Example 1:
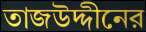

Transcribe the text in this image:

তাজউদ্দীনের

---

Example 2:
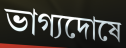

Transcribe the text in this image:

ভাগ্যদোষে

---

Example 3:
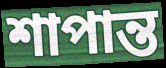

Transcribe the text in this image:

শাপান্ত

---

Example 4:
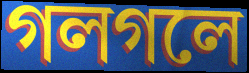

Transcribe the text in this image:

গলগলে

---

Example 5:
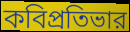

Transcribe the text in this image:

কবিপ্রতিভার